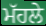
ਮੱਹਲੇ